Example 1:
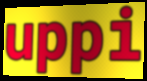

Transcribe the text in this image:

uppi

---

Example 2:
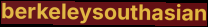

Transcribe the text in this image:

berkeleysouthasian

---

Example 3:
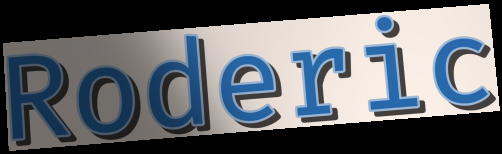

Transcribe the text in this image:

Roderic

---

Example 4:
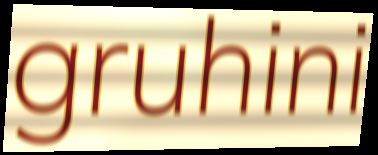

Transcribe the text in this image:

gruhini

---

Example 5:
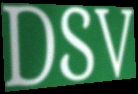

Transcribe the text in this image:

DSV